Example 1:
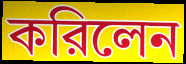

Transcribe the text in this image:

করিলেন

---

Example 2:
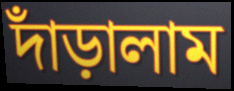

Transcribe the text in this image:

দাঁড়ালাম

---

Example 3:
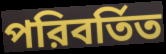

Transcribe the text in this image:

পরিবর্তিত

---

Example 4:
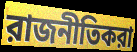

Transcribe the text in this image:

রাজনীতিকরা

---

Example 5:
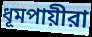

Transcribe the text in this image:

ধূমপায়ীরা